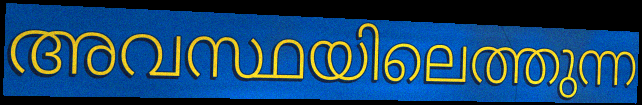
അവസ്ഥയിലെത്തുന്ന